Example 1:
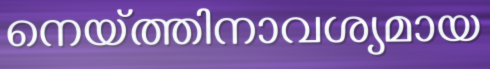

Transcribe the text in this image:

നെയ്ത്തിനാവശ്യമായ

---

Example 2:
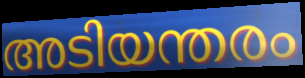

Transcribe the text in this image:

അടിയന്തരം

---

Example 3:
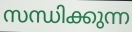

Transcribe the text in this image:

സന്ധിക്കുന്ന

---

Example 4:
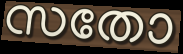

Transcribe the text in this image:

സതോ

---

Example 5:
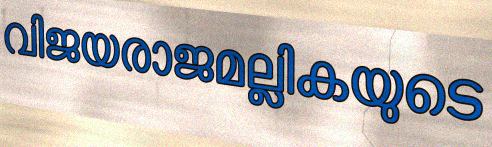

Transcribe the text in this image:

വിജയരാജമല്ലികയുടെ